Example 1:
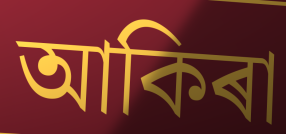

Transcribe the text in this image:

আকিৰা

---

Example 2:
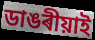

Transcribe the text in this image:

ডাঙৰীয়াই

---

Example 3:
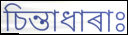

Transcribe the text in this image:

চিন্তাধাৰাঃ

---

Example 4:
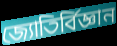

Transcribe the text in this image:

জ্যোতিৰ্বিজ্ঞান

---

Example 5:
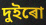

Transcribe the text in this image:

দুইৰো